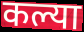
कल्या